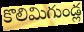
కొలిమిగుండ్ల